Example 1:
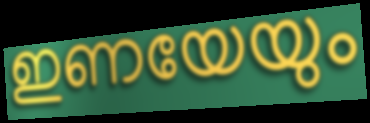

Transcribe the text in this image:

ഇണയേയും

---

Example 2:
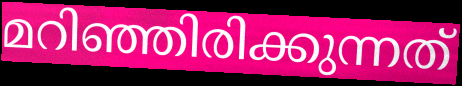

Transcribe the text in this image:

മറിഞ്ഞിരിക്കുന്നത്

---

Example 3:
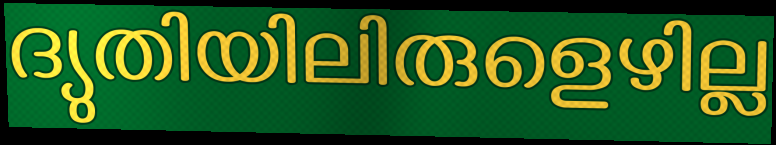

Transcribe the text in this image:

ദ്യുതിയിലിരുളെഴില്ല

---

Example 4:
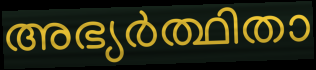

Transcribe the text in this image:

അഭ്യർത്ഥിതാ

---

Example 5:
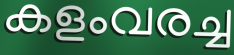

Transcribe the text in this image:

കളംവരച്ച